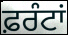
ਫ਼ਰੰਟਾਂ